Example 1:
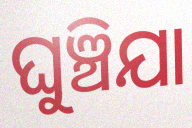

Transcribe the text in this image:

ଘୁଞ୍ଚିଯା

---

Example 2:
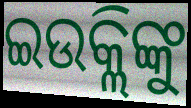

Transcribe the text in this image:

ଇଉକ୍ଲିଙ୍କୁ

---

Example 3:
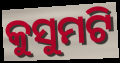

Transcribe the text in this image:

କୁସୁମଟି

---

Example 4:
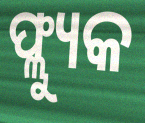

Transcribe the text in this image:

ଫ୍ଲ୍ୟୁକ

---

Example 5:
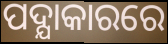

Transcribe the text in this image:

ପଦ୍ଯାକାରରେ